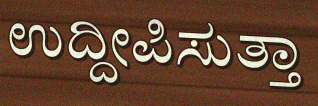
ಉದ್ದೀಪಿಸುತ್ತಾ